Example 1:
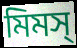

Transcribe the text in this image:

মিমস্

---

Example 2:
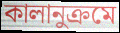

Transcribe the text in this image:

কালানুক্রমে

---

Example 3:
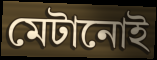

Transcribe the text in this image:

মেটানোই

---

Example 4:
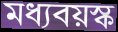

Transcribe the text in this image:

মধ্যবয়স্ক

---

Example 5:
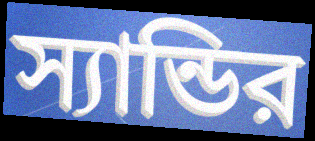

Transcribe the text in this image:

স্যান্ডির